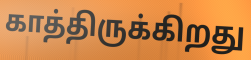
காத்திருக்கிறது